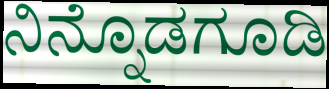
ನಿನ್ನೊಡಗೂಡಿ